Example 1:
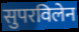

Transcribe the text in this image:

सुपरविलेन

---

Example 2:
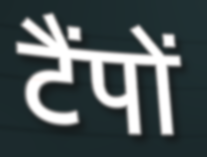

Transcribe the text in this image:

टैंपों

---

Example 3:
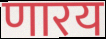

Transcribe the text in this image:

णारय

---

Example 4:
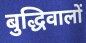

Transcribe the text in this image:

बुद्धिवालों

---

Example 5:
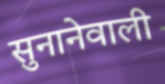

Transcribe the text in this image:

सुनानेवाली